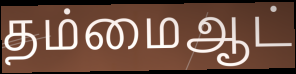
தம்மைஆட்